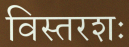
विस्तरशः